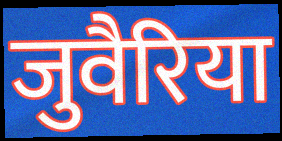
जुवैरिया